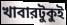
খাবারটুকুই